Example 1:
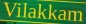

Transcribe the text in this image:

Vilakkam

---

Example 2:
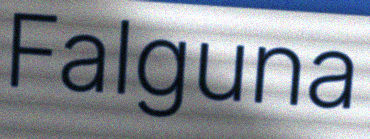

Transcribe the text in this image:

Falguna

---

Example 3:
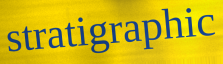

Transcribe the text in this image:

stratigraphic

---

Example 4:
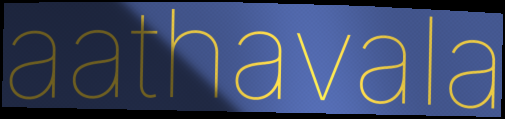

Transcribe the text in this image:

aathavala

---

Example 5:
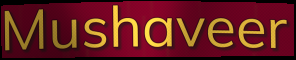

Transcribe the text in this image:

Mushaveer